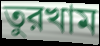
তুরখাম